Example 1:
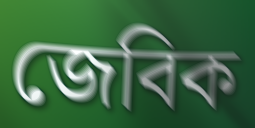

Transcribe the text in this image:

জেবিক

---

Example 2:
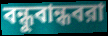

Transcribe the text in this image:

বন্ধুবান্ধবরা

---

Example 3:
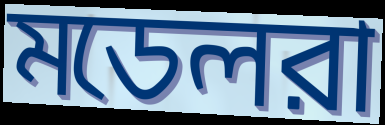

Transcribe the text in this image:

মডেলরা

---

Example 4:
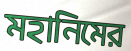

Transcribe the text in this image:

মহানিমের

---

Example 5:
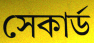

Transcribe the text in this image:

সেকার্ড